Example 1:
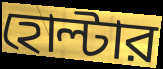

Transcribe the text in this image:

হোল্টার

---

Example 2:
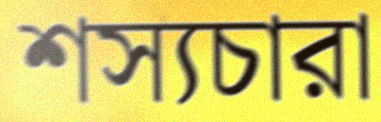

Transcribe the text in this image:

শস্যচারা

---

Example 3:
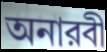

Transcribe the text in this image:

অনারবী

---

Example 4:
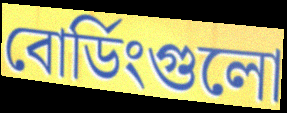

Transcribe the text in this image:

বোর্ডিংগুলো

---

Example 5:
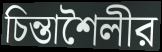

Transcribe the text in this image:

চিন্তাশৈলীর